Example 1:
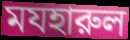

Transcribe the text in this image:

মযহারুল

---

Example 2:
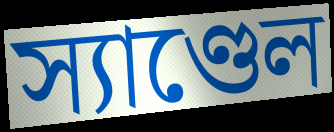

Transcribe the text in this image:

স্যাণ্ডেল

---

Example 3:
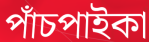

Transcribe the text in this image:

পাঁচপাইকা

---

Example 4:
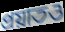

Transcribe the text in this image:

প্রয়াতও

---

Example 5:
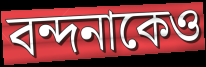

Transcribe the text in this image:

বন্দনাকেও